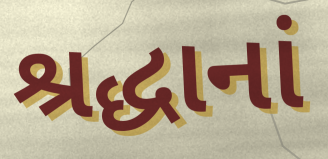
શ્રદ્ધાનાં